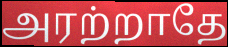
அரற்றாதே